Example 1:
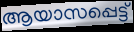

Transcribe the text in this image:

ആയാസപ്പെട്ട്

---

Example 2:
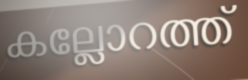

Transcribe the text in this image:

കല്ലോറത്ത്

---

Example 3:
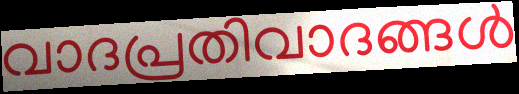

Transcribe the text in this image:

വാദപ്രതിവാദങ്ങൾ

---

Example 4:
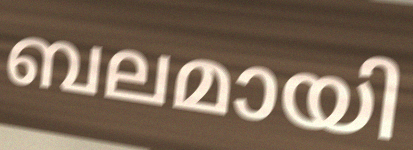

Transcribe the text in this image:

ബലമായി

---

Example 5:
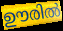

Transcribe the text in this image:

ഊരിൽ